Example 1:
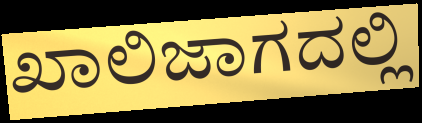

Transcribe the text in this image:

ಖಾಲಿಜಾಗದಲ್ಲಿ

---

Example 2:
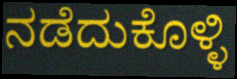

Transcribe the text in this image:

ನಡೆದುಕೊಳ್ಳಿ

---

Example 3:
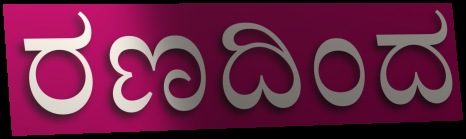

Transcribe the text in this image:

ರಣದಿಂದ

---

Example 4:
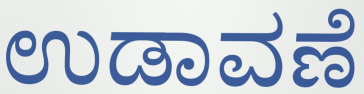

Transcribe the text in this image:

ಉಡಾವಣೆ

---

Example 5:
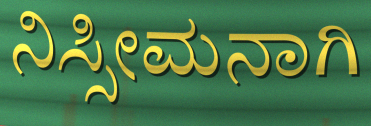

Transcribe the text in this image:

ನಿಸ್ಸೀಮನಾಗಿ